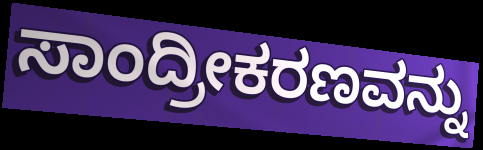
ಸಾಂದ್ರೀಕರಣವನ್ನು